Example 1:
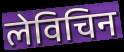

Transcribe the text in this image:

लेविचिन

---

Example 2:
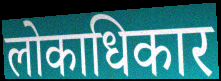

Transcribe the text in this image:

लोकाधिकार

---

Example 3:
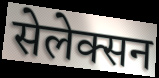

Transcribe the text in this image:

सेलेक्सन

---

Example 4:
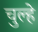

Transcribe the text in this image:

चुल्हे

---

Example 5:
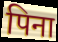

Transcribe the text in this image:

पिना